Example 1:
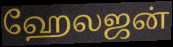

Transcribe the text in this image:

ஹேலஜன்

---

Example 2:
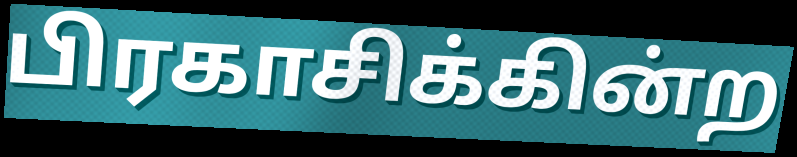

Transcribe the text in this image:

பிரகாசிக்கின்ற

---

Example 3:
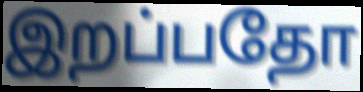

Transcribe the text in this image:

இறப்பதோ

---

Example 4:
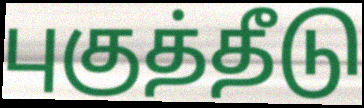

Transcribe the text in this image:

புகுத்தீடு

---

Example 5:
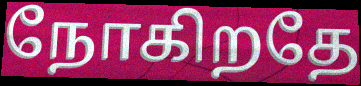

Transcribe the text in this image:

நோகிறதே